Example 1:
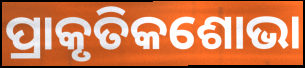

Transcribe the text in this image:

ପ୍ରାକୃତିକଶୋଭା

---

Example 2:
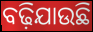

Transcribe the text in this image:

ବଢ଼ିଯାଉଛି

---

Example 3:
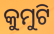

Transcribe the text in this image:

କୁମୁଟି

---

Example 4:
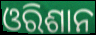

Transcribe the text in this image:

ଓରିଶାନ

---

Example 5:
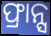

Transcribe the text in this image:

ଫ୍ରାନ୍ସ